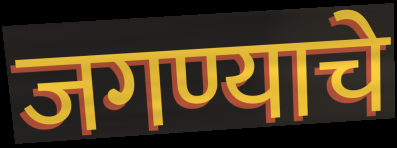
जगण्याचे